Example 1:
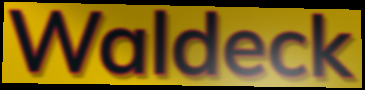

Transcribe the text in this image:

Waldeck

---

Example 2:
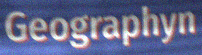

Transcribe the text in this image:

Geographyn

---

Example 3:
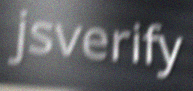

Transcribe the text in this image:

jsverify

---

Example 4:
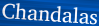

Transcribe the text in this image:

Chandalas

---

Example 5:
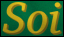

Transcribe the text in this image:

Soi